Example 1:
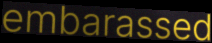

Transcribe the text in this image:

embarassed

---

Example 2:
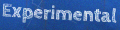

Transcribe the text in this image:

Experimental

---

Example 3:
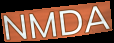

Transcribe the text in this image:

NMDA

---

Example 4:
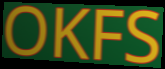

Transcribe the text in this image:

OKFS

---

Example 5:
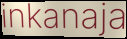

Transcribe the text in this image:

inkanaja